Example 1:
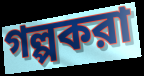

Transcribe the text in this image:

গল্পকরা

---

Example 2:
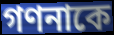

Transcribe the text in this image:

গণনাকে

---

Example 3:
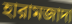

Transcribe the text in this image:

হারামজাদা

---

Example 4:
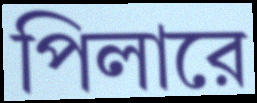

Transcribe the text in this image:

পিলারে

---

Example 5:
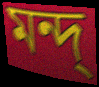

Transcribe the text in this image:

মন্দ্